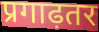
प्रगाढ़तर